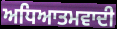
ਅਧਿਆਤਮਵਾਦੀ